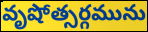
వృషోత్సర్గమును